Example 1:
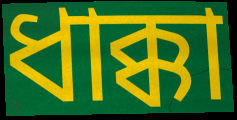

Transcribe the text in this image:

ধাক্কা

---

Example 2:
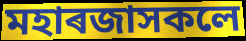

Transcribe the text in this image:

মহাৰজাসকলে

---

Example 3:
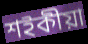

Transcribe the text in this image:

শইকীয়া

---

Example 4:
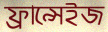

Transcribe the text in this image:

ফ্ৰান্সেইজ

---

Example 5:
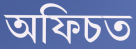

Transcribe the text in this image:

অফিচত